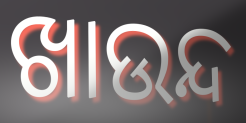
ଖାଉନ୍ଦ